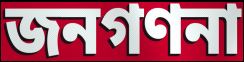
জনগণনা